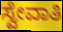
ಸ್ವೇವಾತಿ